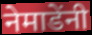
नेमाडेंनी